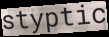
styptic